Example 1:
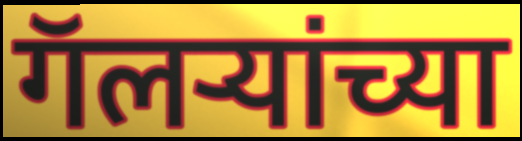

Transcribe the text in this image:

गॅलर्‍यांच्या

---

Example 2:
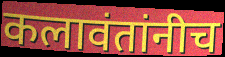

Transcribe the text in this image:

कलावंतांनीच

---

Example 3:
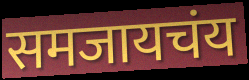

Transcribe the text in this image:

समजायचंय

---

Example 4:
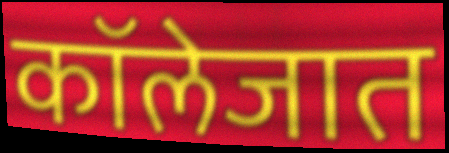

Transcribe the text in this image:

कॉलेजात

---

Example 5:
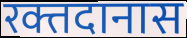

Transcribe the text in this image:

रक्तदानास